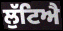
ਲੁੱਟਿਐ